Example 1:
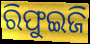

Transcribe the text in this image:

ରିଫୁଇଜି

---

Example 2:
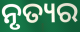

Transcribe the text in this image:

ନୃତ୍ୟର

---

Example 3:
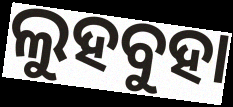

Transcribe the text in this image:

ଲୁହବୁହା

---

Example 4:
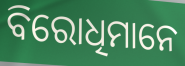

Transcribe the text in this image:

ବିରୋଧିମାନେ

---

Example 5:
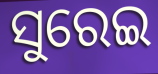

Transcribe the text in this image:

ସୁରେଇ